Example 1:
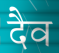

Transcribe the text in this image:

दैव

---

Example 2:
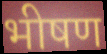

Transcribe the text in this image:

भीषण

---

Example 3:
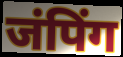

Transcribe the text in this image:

जंपिंग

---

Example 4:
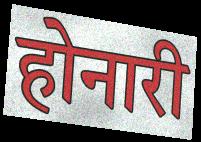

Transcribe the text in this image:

होनारी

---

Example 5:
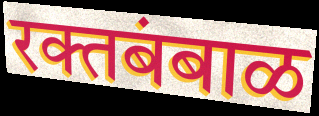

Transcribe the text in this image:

रक्‍तबंबाळ